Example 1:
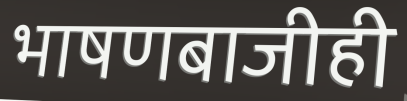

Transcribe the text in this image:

भाषणबाजीही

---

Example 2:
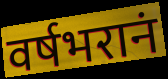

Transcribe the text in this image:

वर्षभरानं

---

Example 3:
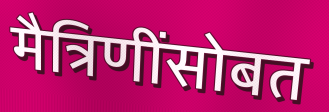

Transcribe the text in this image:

मैत्रिणींसोबत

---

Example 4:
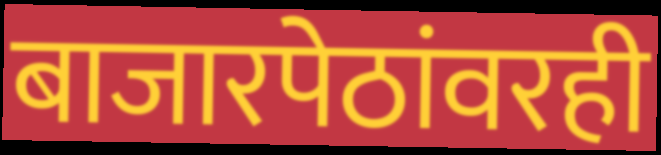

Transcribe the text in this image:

बाजारपेठांवरही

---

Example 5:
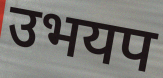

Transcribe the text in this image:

उभयप